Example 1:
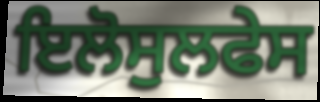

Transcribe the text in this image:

ਇਲੋਸੁਲਫੇਸ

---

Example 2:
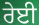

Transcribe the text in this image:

ਰੇਈ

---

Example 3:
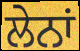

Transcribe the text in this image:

ਲੇਨਾਂ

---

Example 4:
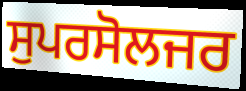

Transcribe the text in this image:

ਸੁਪਰਸੋਲਜਰ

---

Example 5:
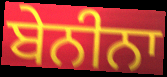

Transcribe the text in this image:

ਬੇਨੀਨਾ